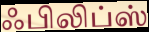
ஃபிலிப்ஸ்